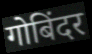
गोबिंदर